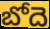
బోదె